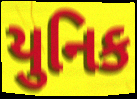
યુનિક